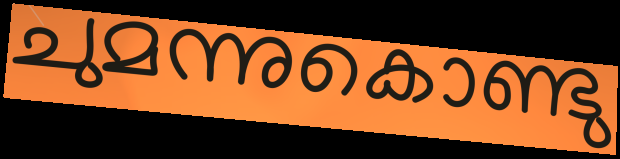
ചുമന്നുകൊണ്ടു